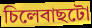
চিলেবাছটো